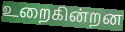
உறைகின்றன